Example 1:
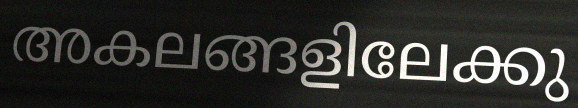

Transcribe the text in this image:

അകലങ്ങളിലേക്കു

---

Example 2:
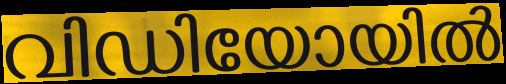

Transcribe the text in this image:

വിഡിയോയിൽ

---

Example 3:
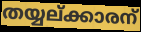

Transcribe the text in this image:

തയ്യല്ക്കാരന്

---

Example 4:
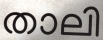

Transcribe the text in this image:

താലി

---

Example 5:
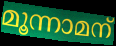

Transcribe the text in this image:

മൂന്നാമന്